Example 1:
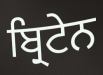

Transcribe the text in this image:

ਬ੍ਰਿਟੇਨ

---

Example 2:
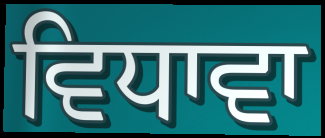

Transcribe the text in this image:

ਵਿਧਾਵਾ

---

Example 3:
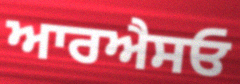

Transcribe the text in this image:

ਆਰਐਸਓ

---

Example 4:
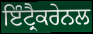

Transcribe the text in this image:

ਇੰਟ੍ਰੈਕਰੇਨਲ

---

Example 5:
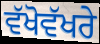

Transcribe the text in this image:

ਵੱਖੋਵੱਖਰੇ